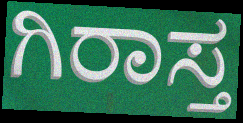
ಗಿರಾಸ್ತ